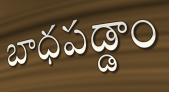
బాధపడ్డాం